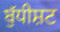
ਬੁੱਧੀਸ਼ਟ